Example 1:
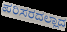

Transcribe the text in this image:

ಪರಿಸರದಲ್ಲಾದ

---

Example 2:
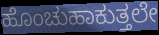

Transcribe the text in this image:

ಹೊಂಚುಹಾಕುತ್ತಲೇ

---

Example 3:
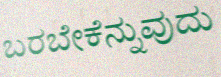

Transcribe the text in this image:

ಬರಬೇಕೆನ್ನುವುದು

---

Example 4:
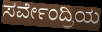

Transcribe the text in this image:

ಸರ್ವೇಂದ್ರಿಯ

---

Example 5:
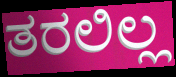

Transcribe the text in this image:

ತರಲಿಲ್ಲ